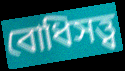
বোধিসত্ত্ব